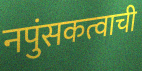
नपुंसकत्वाची